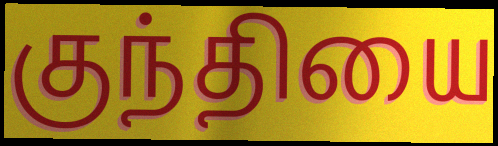
குந்தியை